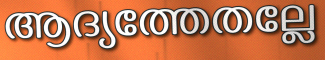
ആദ്യത്തേതല്ലേ